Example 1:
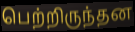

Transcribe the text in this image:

பெற்றிருந்தன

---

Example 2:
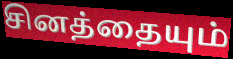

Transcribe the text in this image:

சினத்தையும்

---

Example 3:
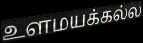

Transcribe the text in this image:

உளமயக்கல்ல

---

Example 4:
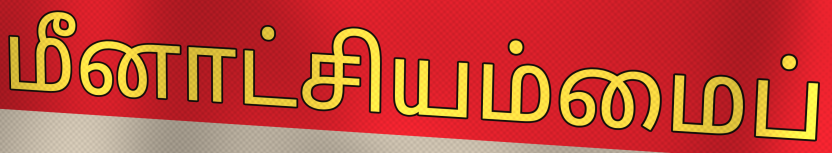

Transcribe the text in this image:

மீனாட்சியம்மைப்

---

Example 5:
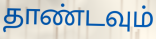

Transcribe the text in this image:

தாண்டவும்